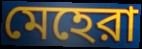
মেহেরা